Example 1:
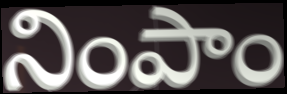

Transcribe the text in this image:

నింపాం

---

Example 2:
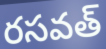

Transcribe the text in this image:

రసవత్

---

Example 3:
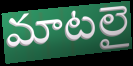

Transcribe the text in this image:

మాటలై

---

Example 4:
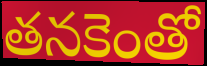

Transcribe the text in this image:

తనకెంతో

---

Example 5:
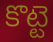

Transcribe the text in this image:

కొట్టె